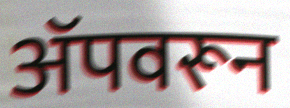
ॲपवरून